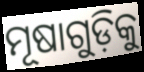
ମୂଷାଗୁଡ଼ିକୁ